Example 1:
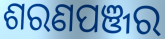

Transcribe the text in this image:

ଶରଣପଞ୍ଜର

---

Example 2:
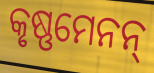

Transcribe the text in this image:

କୃଷ୍ଣମେନନ୍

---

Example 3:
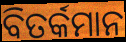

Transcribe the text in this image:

ବିତର୍କମାନ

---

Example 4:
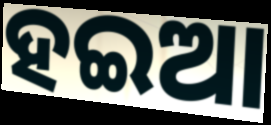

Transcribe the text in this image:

ହଇଆ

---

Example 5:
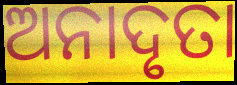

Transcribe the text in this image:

ଅନାଦୃତା